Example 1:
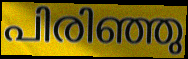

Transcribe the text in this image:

പിരിഞ്ഞു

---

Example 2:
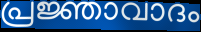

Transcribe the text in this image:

പ്രജ്ഞാവാദം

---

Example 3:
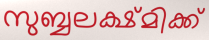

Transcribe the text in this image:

സുബ്ബലക്ഷ്മിക്ക്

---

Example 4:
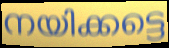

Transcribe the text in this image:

നയിക്കട്ടെ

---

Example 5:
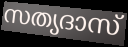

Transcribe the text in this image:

സത്യദാസ്